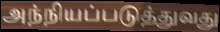
அந்நியப்படுத்துவது